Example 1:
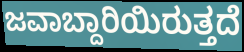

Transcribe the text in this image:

ಜವಾಬ್ದಾರಿಯಿರುತ್ತದೆ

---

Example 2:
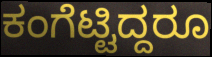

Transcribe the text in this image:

ಕಂಗೆಟ್ಟಿದ್ದರೂ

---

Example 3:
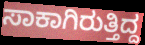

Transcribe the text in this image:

ಸಾಕಾಗಿರುತ್ತಿದ್ದ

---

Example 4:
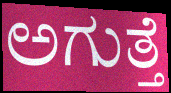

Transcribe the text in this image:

ಅಗುತ್ತೆ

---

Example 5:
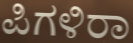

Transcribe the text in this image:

ಪಿಗಳಿರಾ